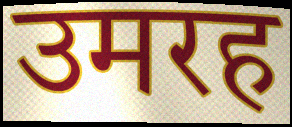
उमरह